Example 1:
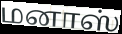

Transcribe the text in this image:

மனாஸ்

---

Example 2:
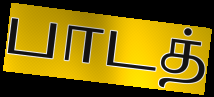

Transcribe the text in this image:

பாடத்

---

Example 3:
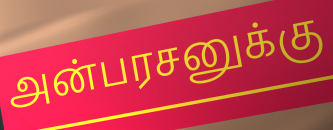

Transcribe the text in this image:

அன்பரசனுக்கு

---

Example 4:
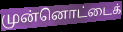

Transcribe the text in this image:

முன்னொட்டைக்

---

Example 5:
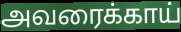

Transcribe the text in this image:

அவரைக்காய்